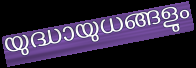
യുദ്ധായുധങ്ങളും